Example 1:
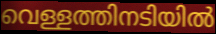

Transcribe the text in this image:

വെള്ളത്തിനടിയിൽ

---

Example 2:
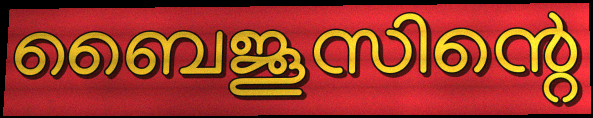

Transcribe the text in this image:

ബൈജൂസിന്റെ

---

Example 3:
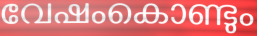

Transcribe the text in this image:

വേഷംകൊണ്ടും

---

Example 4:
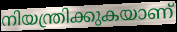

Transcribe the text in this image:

നിയന്ത്രിക്കുകയാണ്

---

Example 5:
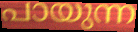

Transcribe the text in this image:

പായുന്ന